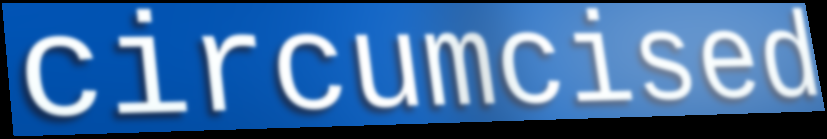
circumcised